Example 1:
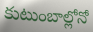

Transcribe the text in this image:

కుటుంబాల్లోనో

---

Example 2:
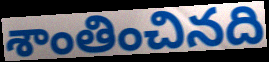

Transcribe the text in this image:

శాంతించినది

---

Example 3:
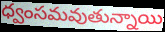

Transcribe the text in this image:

ధ్వంసమవుతున్నాయి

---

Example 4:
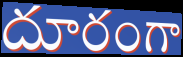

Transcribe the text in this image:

దూరంగా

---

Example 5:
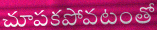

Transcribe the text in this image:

చూపకపోవటంతో